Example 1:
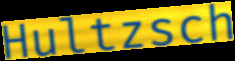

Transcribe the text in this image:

Hultzsch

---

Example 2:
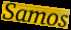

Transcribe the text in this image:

Samos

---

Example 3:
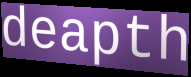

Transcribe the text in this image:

deapth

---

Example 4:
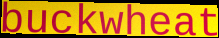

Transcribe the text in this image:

buckwheat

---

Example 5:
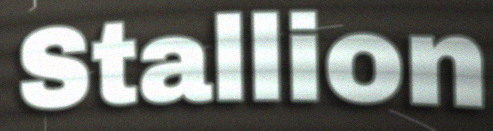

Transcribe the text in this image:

Stallion